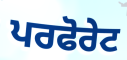
ਪਰਫੋਰੇਟ